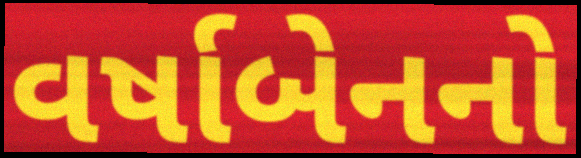
વર્ષાબેનનો